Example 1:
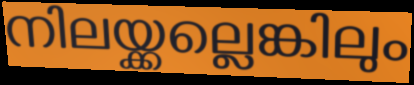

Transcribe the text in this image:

നിലയ്ക്കല്ലെങ്കിലും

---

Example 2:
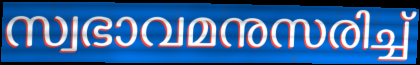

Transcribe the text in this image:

സ്വഭാവമനുസരിച്ച്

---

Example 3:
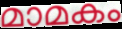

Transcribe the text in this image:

മാമകം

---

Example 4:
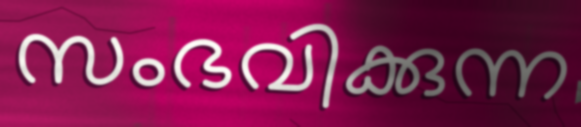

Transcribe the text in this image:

സംഭവിക്കുന്ന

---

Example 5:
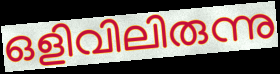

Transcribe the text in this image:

ഒളിവിലിരുന്നു